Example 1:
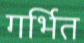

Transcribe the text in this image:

गर्भित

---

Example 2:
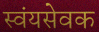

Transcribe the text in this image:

स्वंयसेवक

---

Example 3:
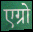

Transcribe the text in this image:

एग्रो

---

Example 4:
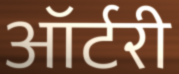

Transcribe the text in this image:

ऑर्टरी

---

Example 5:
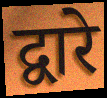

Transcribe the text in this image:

द्वारे